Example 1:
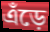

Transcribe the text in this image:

এঁড়ে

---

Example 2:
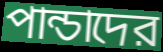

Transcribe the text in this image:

পান্ডাদের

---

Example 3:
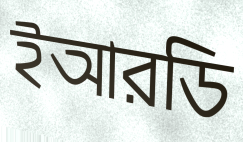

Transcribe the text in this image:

ইআরডি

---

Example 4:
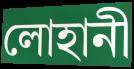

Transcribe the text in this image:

লোহানী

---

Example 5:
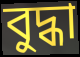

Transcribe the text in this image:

বুদ্ধা